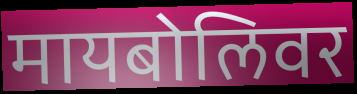
मायबोलिवर